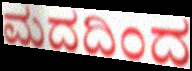
ಮದದಿಂದ